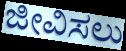
ಜೀವಿಸಲು